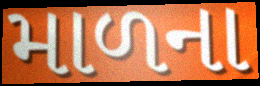
માળના